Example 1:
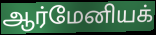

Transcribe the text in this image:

ஆர்மேனியக்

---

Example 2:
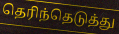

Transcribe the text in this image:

தெரிந்தெடுத்து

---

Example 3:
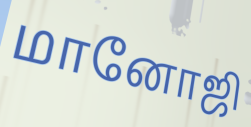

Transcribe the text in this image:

மானோஜி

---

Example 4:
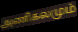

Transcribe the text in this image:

அணிகலமும்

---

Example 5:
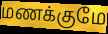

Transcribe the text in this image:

மணக்குமே